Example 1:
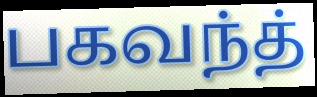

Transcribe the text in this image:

பகவந்த்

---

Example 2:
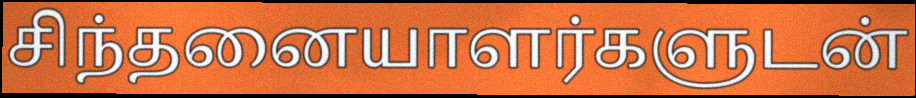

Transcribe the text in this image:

சிந்தனையாளர்களுடன்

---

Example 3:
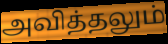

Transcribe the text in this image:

அவித்தலும்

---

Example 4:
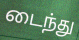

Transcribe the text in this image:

டைந்து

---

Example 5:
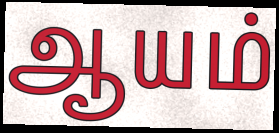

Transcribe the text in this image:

ஆயம்